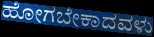
ಹೋಗಬೇಕಾದವಳು